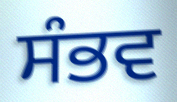
ਸੰਭਵ